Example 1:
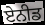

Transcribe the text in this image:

ਏਨੀਡ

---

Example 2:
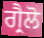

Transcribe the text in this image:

ਗ੍ਰੈਲੋ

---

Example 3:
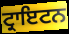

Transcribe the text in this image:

ਟ੍ਰਾਇਟਨ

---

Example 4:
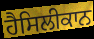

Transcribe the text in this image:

ਹੈਸਿਲੀਕਾਨ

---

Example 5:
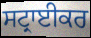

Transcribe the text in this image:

ਸਟ੍ਰਾਈਕਰ